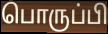
பொருப்பி